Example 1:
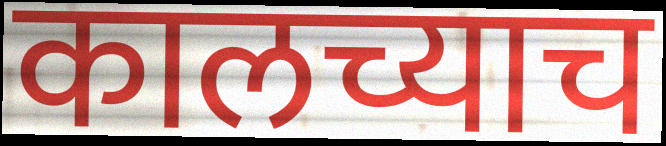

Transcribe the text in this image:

कालच्याच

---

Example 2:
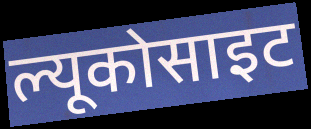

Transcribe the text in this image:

ल्यूकोसाइट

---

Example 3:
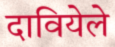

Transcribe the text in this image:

दावियेले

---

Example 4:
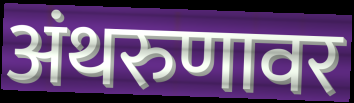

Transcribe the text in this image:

अंथरुणावर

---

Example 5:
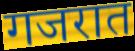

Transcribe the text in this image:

गजरात